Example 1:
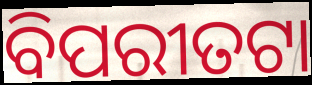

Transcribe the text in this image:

ବିପରୀତଟା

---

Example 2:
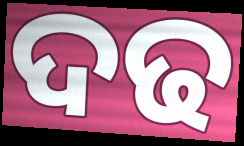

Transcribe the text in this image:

ଦଢ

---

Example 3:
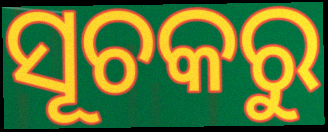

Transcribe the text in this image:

ସୂଚକରୁ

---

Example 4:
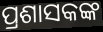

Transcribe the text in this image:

ପ୍ରଶାସକଙ୍କ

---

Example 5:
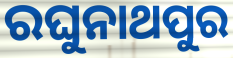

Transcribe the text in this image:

ରଘୁନାଥପୁର